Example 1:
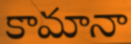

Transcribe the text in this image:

కామానా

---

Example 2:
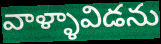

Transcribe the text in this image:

వాళ్ళావిడను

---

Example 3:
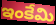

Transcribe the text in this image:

ఇంకేమి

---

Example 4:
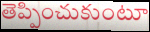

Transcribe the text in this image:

తెప్పించుకుంటూ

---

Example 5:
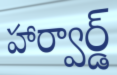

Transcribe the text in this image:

హార్వార్డ్